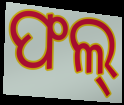
ଫଲ୍